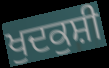
ਖੁਦਕੁਸ਼ੀ